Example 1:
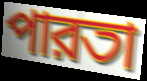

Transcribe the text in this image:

পারতা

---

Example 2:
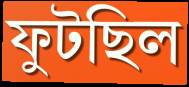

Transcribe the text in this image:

ফুটছিল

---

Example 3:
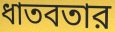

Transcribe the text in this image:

ধাতবতার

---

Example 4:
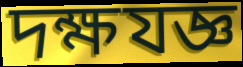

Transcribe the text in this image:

দক্ষযজ্ঞ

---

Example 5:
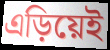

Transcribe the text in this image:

এড়িয়েই